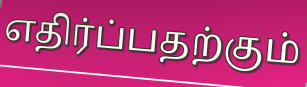
எதிர்ப்பதற்கும்